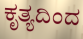
ಕೃತ್ಯದಿಂದ